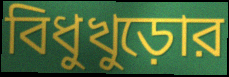
বিধুখুড়োর